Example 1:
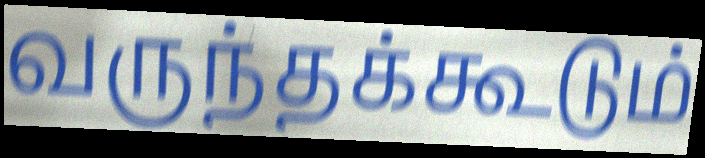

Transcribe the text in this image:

வருந்தக்கூடும்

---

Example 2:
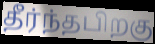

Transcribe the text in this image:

தீர்ந்தபிறகு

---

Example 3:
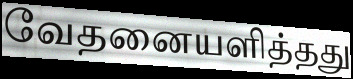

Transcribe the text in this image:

வேதனையளித்தது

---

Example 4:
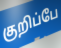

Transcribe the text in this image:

குறிப்பே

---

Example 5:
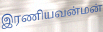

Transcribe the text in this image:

இரணியவன்மன்